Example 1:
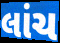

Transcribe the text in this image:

લાંચ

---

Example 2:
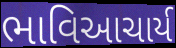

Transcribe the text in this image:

ભાવિઆચાર્ય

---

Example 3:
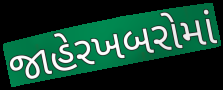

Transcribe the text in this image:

જાહેરખબરોમાં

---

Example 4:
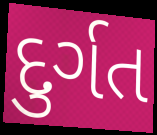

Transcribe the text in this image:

દુર્ગત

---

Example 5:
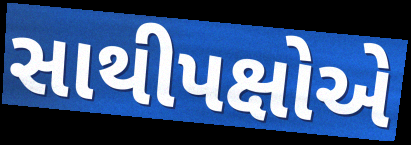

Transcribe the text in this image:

સાથીપક્ષોએ